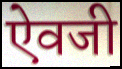
ऐवजी